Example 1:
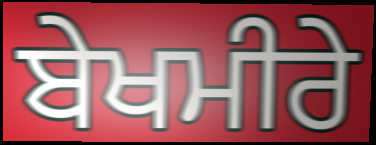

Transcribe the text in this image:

ਬੇਖਮੀਰੇ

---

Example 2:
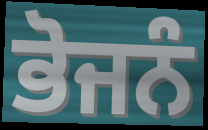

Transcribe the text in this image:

ਭੋਜਨੰ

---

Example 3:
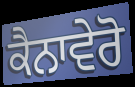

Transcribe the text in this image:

ਕੈਨਾਵੇਰੋ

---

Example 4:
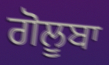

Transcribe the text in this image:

ਗੋਲੂਬਾ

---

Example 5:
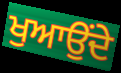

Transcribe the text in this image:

ਖੁਆਉਂਦੇ